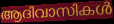
ആദിവാസികൾ